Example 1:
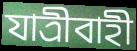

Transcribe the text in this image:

যাত্ৰীবাহী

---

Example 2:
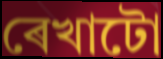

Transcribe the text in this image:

ৰেখাটো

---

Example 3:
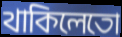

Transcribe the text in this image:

থাকিলেতো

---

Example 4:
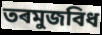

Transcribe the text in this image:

তৰমুজবিধ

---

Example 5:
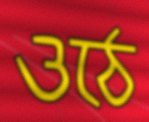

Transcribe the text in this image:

ওঠে